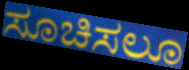
ಸೂಚಿಸಲೂ